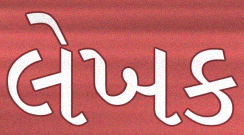
લેખક